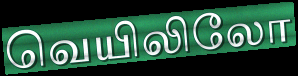
வெயிலிலோ